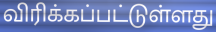
விரிக்கப்பட்டுள்ளது